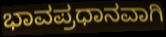
ಭಾವಪ್ರಧಾನವಾಗಿ